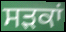
ਸਡ਼ਕਾਂ